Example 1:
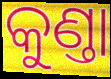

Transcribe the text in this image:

କୁଣ୍ତା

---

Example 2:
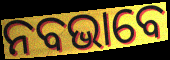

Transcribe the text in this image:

ନବଭାବେ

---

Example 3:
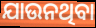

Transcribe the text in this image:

ଯାଉନଥିବା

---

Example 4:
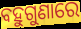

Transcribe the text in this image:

ବହୁଗୁଣାରେ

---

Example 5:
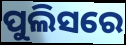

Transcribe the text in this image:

ପୁଲିସରେ